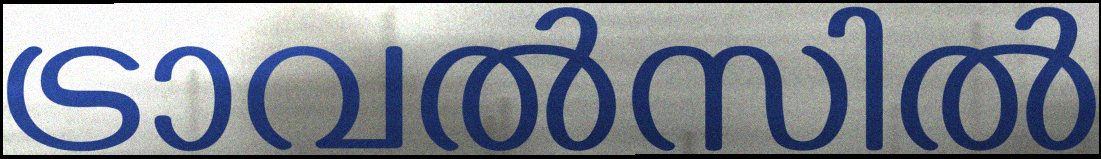
ട്രാവൽസിൽ